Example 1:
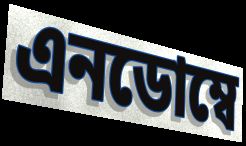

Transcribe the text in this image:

এনডোম্বে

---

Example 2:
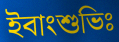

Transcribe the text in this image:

ইবাংশুভিঃ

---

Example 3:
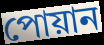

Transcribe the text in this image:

পোয়ান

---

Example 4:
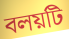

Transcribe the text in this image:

বলয়টি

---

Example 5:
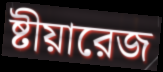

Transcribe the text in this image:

ষ্টীয়ারেজ